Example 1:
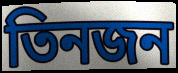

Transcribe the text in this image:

তিনজন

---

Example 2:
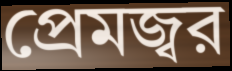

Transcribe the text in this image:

প্রেমজ্বর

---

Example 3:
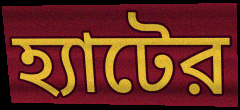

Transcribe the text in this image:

হ্যাটের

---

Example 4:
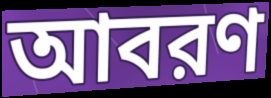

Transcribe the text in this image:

আবরণ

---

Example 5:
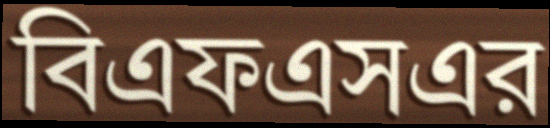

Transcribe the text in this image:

বিএফএসএর